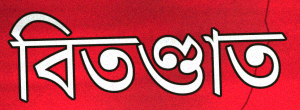
বিতণ্ডাত